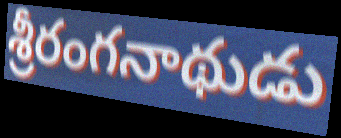
శ్రీరంగనాథుడు